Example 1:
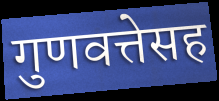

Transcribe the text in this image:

गुणवत्तेसह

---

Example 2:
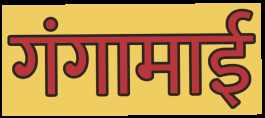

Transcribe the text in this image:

गंगामाई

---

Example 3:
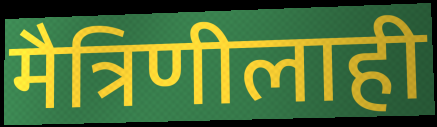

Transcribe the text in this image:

मैत्रिणीलाही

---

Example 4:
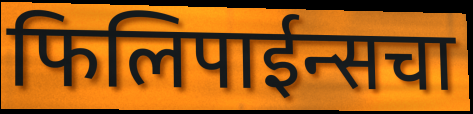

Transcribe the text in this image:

फिलिपाईन्सचा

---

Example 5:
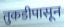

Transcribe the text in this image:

तुकडीपासून